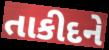
તાકીદને